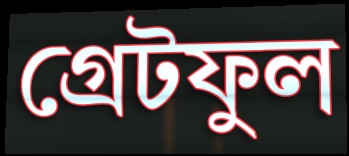
গ্ৰেটফুল